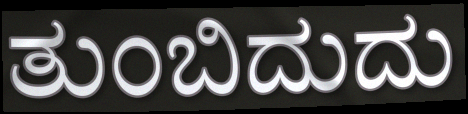
ತುಂಬಿದುದು